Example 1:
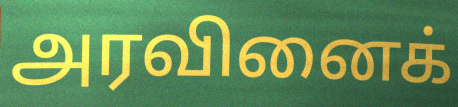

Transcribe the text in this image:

அரவினைக்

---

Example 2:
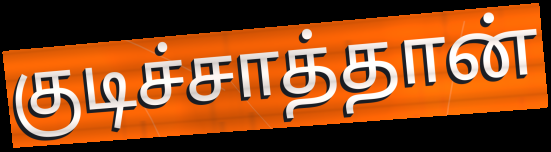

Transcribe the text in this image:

குடிச்சாத்தான்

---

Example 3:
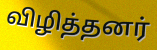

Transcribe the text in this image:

விழித்தனர்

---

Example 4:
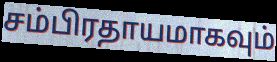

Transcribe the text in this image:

சம்பிரதாயமாகவும்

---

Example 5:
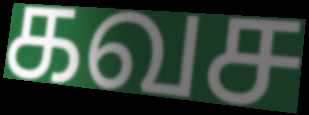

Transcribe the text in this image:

கவச